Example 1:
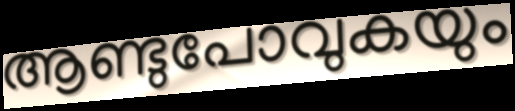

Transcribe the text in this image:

ആണ്ടുപോവുകയും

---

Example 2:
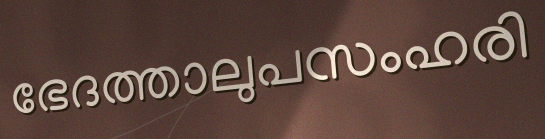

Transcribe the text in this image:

ഭേദത്താലുപസംഹരി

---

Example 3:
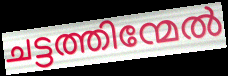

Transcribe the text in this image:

ചട്ടത്തിന്മേൽ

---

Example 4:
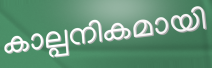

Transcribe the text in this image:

കാല്പനികമായി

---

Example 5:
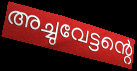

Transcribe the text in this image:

അച്ചുവേട്ടന്റെ